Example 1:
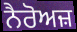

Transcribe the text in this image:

ਨੈਰੋਅਜ਼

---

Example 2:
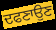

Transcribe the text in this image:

ਦਫਣਾਉਣ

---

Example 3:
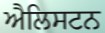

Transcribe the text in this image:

ਐਲਿਸਟਨ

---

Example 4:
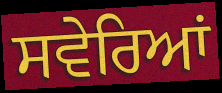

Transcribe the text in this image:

ਸਵੇਰਿਆਂ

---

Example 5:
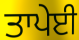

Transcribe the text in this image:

ਤਾਪੇਈ